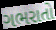
ગભરાતો